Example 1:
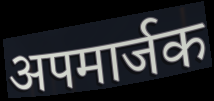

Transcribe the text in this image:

अपमार्जक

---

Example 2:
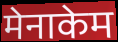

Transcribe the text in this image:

मेनाकेम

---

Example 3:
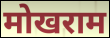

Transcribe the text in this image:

मोखराम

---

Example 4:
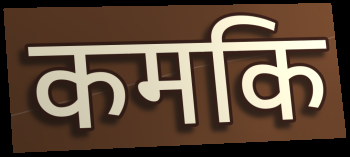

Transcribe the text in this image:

कमकि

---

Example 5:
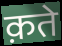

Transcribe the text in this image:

क़ते